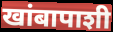
खांबापाशी